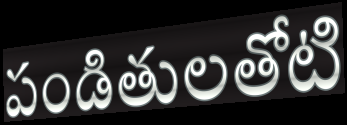
పండితులతోటి